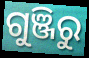
ଗୁଞ୍ଜିରୁ